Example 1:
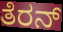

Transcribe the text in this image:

ತೆರನ್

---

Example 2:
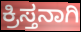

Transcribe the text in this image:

ಕ್ರಿಸ್ತನಾಗಿ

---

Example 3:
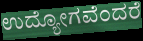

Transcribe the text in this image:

ಉದ್ಯೋಗವೆಂದರೆ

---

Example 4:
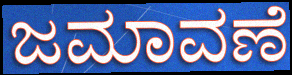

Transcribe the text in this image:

ಜಮಾವಣೆ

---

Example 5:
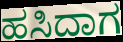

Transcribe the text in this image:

ಹಸಿದಾಗ